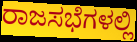
ರಾಜಸಭೆಗಳಲ್ಲಿ